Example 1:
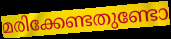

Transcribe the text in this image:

മരിക്കേണ്ടതുണ്ടോ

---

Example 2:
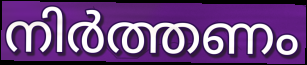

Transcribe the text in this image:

നിർത്തണം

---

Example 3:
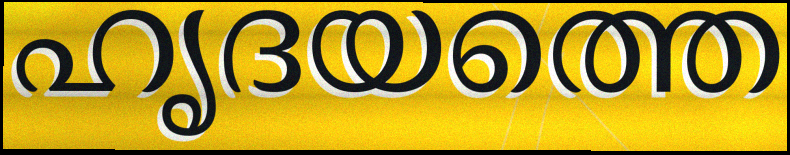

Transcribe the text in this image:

ഹൃദയത്തെ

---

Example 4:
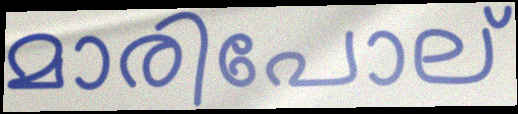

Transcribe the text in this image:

മാരിപോല്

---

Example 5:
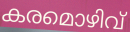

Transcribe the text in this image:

കരമൊഴിവ്